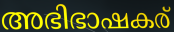
അഭിഭാഷകര്